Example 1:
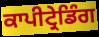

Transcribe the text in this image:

ਕਾਪੀਟ੍ਰੇਡਿੰਗ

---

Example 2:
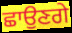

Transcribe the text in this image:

ਛਾਉਣਗੇ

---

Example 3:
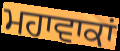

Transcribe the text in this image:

ਮਹਾਵਾਕਾਂ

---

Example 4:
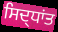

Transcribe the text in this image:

ਸਿਦ੍ਧਾਂਤ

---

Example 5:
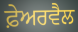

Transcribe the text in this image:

ਫ਼ੇਅਰਵੈਲ